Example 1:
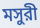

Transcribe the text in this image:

মসুরী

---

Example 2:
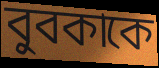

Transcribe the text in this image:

বুবকাকে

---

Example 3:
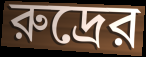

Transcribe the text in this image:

রুদ্রের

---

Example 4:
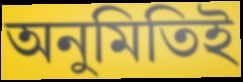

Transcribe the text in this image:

অনুমিতিই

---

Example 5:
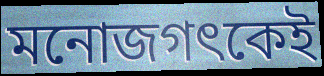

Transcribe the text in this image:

মনোজগৎকেই